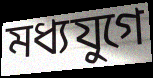
মধ্যযুগে